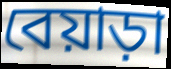
বেয়াড়া